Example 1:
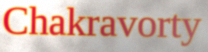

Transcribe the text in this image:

Chakravorty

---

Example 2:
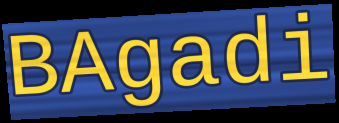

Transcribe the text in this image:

BAgadi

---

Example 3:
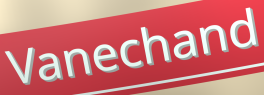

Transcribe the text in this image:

Vanechand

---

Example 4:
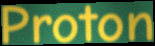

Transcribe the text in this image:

Proton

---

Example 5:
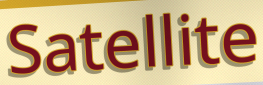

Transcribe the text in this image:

Satellite